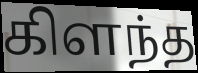
கிளந்த